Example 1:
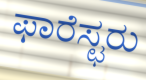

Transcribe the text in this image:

ಫಾರೆಸ್ಟರು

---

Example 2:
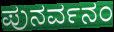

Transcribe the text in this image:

ಪುನರ್ವನಂ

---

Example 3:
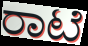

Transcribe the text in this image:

ರಾಟೆ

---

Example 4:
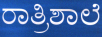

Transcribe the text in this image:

ರಾತ್ರಿಶಾಲೆ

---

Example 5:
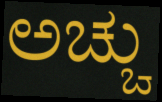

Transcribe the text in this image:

ಅಚ್ಚು